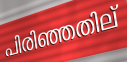
പിരിഞ്ഞതില്